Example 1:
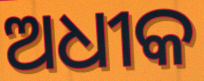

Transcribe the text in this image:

ଅଧୀକ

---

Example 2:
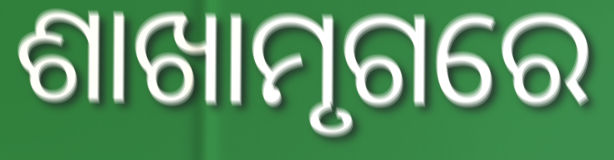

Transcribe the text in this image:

ଶାଖାମୃଗରେ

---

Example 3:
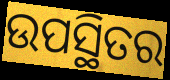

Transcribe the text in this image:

ଉପସ୍ଥିତର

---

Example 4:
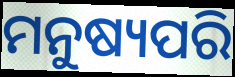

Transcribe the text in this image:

ମନୁଷ୍ୟପରି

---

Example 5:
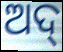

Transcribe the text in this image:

ଅଦ୍